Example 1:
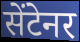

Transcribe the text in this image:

सेंटेनर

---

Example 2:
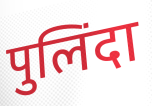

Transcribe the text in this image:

पुलिंदा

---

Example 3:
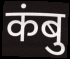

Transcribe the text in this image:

कंबु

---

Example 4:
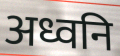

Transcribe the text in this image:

अध्वनि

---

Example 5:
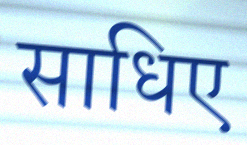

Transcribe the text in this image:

साधिए